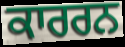
ਕਾਰਰਨ